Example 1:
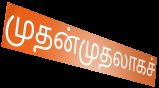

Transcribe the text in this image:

முதன்முதலாகச்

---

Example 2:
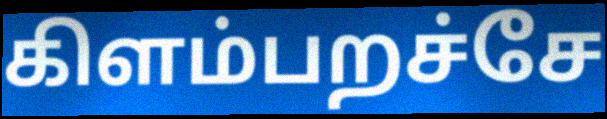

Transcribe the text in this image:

கிளம்பறச்சே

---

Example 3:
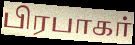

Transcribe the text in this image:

பிரபாகர்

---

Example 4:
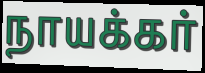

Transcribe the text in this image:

நாயக்கர்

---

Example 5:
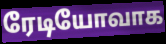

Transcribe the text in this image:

ரேடியோவாக